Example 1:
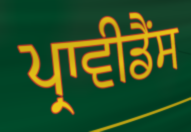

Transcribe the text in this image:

ਪ੍ਰਾਵੀਡੈਂਸ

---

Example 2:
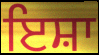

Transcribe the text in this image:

ਇਸ਼ਾ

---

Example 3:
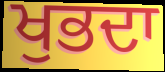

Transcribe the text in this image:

ਖੁਭਦਾ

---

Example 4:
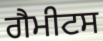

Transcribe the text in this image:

ਗੈਮੀਟਸ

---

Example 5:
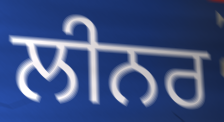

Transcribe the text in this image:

ਲੀਨਰ